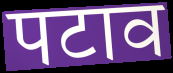
पटाव